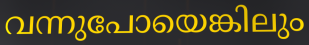
വന്നുപോയെങ്കിലും